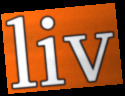
liv